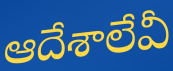
ఆదేశాలేవీ